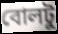
বোলটু